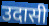
उदासी